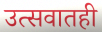
उत्सवातही